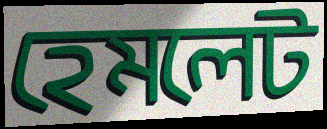
হেমলেট